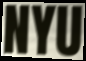
NYU